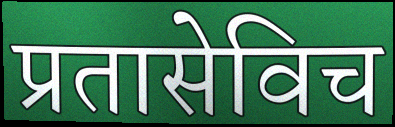
प्रतासेविच